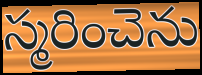
స్మరించెను